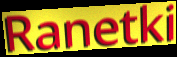
Ranetki